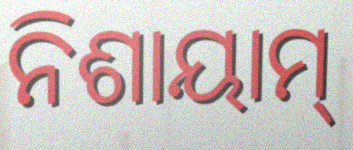
ନିଶାୟାମ୍